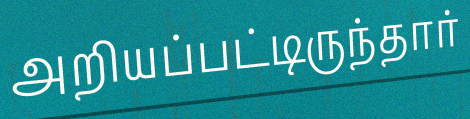
அறியப்பட்டிருந்தார்